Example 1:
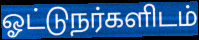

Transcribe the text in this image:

ஓட்டுநர்களிடம்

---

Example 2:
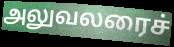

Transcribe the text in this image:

அலுவலரைச்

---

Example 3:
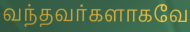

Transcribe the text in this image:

வந்தவர்களாகவே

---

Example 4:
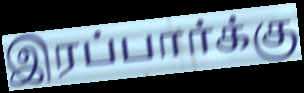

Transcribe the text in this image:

இரப்பார்க்கு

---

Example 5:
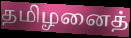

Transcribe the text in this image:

தமிழனைத்